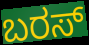
ಬರಸ್